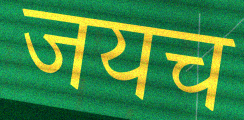
जयच